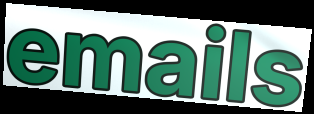
emails